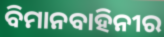
ବିମାନବାହିନୀର